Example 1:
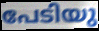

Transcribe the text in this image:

പേടിയു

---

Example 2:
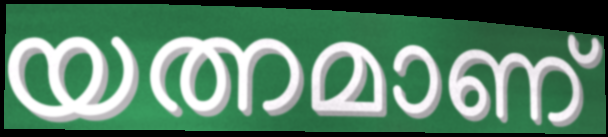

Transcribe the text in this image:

യത്നമാണ്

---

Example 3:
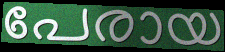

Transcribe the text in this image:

പേരായ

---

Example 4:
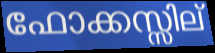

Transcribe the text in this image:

ഫോക്കസ്സില്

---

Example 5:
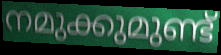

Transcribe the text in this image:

നമുക്കുമുണ്ട്